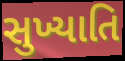
સુખ્યાતિ